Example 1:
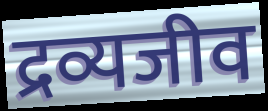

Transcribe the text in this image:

द्रव्यजीव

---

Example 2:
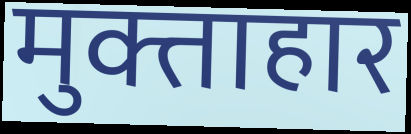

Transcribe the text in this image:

मुक्ताहार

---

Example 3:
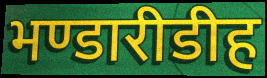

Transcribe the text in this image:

भण्डारीडीह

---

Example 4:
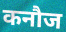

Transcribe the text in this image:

कनौज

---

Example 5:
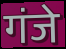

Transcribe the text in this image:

गंजे